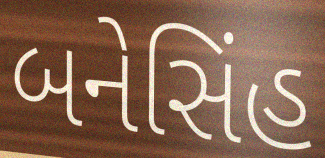
બનેસિંહ